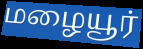
மழையூர்